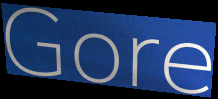
Gore